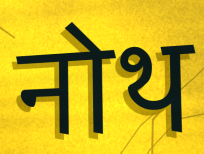
नोथ